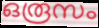
ഒരൂസം